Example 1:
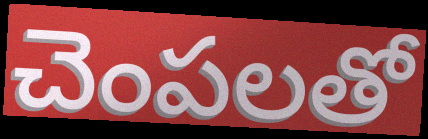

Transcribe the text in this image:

చెంపలతో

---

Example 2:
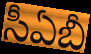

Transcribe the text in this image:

సీఏబీ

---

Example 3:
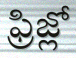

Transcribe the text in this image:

ఫ్రిజ్లో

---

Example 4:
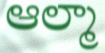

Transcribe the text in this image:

ఆల్మా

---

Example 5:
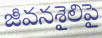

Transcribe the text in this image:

జీవనశైలిపై